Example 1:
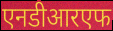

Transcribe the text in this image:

एनडीआरएफ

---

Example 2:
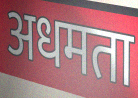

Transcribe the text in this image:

अधमता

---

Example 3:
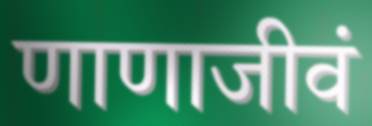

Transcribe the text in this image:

णाणाजीवं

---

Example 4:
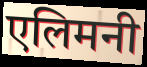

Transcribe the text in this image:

एलिमनी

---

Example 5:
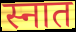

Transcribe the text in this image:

स्नात